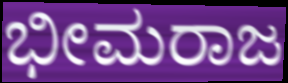
ಭೀಮರಾಜ